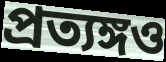
প্রত্যঙ্গও